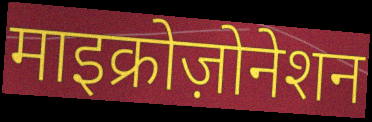
माइक्रोज़ोनेशन